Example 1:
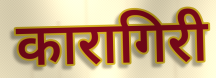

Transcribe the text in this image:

कारागिरी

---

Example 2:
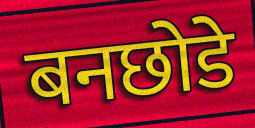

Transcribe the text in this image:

बनछोडे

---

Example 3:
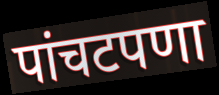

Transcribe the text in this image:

पांचटपणा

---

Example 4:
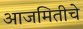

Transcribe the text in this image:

आजमितीचे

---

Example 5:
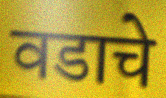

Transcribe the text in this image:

वडाचे